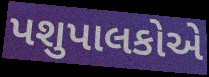
પશુપાલકોએ